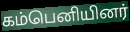
கம்பெனியினர்